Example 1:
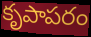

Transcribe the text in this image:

కృపాపరం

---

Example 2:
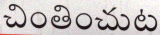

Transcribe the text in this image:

చింతించుట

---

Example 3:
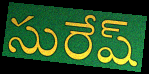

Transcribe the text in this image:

సురేష్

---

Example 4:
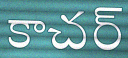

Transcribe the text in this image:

కాచర్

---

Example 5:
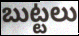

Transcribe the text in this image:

బుట్టలు